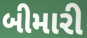
બીમારી